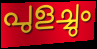
പുളച്ചും